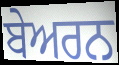
ਬੇਅਰਨ